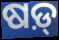
ଷଡ଼୍